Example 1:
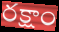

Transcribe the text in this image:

రక్షాం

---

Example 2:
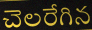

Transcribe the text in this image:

చెలరేగిన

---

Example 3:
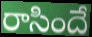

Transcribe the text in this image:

రాసిందే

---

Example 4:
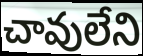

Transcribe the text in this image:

చావులేని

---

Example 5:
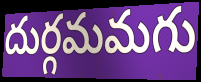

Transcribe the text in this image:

దుర్గమమగు